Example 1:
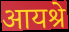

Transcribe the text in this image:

आयश्रे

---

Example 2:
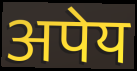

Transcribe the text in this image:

अपेय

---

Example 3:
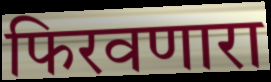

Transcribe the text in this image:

फिरवणारा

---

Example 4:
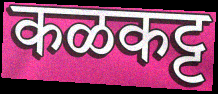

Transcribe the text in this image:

कळकट्ट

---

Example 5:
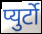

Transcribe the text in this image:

प्युर्टो